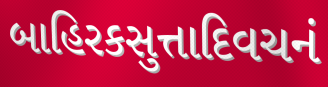
બાહિરકસુત્તાદિવચનં